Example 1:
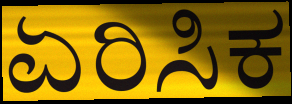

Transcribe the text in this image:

ಏರಿಸಿಕ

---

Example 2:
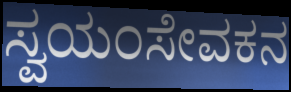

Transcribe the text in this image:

ಸ್ವಯಂಸೇವಕನ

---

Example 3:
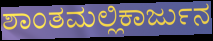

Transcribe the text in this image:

ಶಾಂತಮಲ್ಲಿಕಾರ್ಜುನ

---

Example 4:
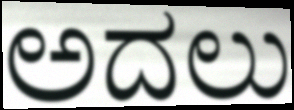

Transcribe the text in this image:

ಅದಲು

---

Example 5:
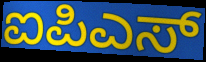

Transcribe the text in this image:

ಐಪಿಎಸ್